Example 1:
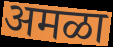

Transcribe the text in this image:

अमळा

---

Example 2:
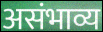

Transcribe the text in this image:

असंभाव्य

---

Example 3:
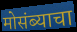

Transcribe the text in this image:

मोसंब्याचा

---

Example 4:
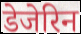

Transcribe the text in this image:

डेजेरिन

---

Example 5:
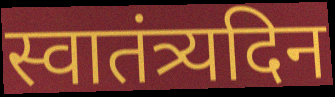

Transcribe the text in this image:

स्वातंत्र्यदिन